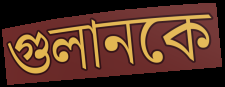
গুলানকে